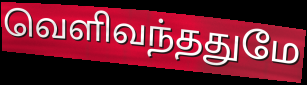
வெளிவந்ததுமே